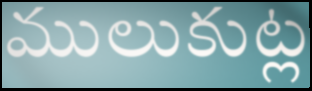
ములుకుట్ల